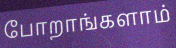
போறாங்களாம்